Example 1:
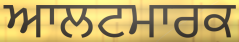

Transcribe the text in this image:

ਆਲਟਮਾਰਕ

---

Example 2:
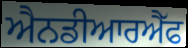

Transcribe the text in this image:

ਐਨਡੀਆਰਐੱਫ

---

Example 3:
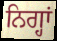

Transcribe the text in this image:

ਨਿਗ੍ਹਾਂ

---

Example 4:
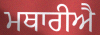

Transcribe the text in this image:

ਮਥਾਰੀਐ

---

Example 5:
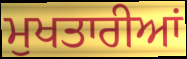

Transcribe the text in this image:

ਮੁਖਤਾਰੀਆਂ